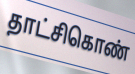
தாட்சிகொண்